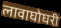
लावाघोघरी